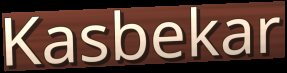
Kasbekar